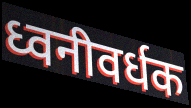
ध्वनीवर्धक